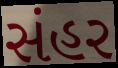
સંહર